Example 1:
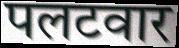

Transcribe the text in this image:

पलटवार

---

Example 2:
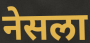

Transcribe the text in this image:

नेसला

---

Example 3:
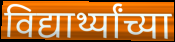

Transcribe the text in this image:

विद्यार्थ्यांच्या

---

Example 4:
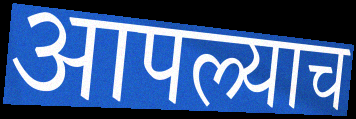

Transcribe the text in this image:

आपल्याच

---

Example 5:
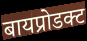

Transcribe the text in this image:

बायप्रोडक्ट